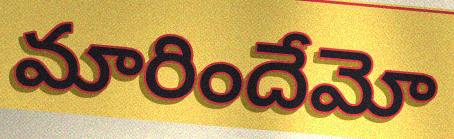
మారిందేమో